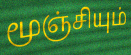
மூஞ்சியும்